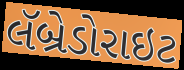
લૅબ્રેડોરાઇટ